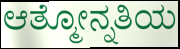
ಆತ್ಮೋನ್ನತಿಯ